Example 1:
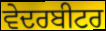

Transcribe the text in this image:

ਵੇਦਰਬੀਟਰ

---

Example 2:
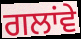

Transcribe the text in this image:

ਗਲਾਂਵੇ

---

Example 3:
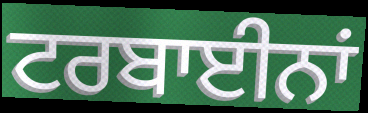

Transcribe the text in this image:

ਟਰਬਾਈਨਾਂ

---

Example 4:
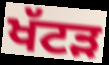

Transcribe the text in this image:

ਖੱਟੜ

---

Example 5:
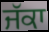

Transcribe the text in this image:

ਜੱਕਾ